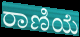
ರಾಣಿಯೆ